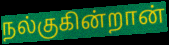
நல்குகின்றான்